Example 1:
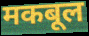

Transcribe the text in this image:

मकबूल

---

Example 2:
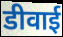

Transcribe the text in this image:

डीवाई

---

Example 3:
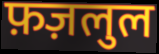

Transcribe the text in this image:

फ़ज़लुल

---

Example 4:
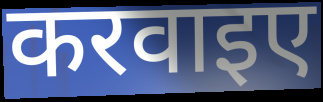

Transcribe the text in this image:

करवाइए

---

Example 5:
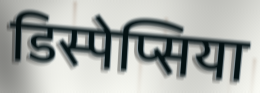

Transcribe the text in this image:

डिस्पेप्सिया